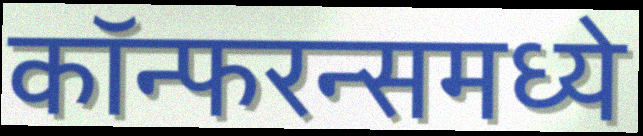
कॉन्फरन्समध्ये